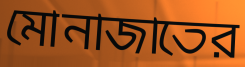
মোনাজাতের